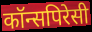
कॉन्सपिरेसी